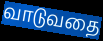
வாடுவதை